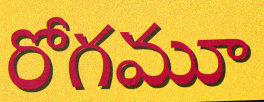
రోగమూ